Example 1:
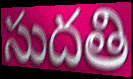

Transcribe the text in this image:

సుదతి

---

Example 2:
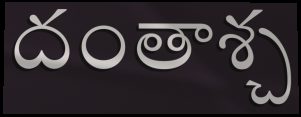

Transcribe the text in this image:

దంతాశ్చ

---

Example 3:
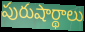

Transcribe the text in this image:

పురుషార్థాలు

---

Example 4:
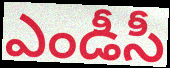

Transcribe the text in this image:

ఎండీసీ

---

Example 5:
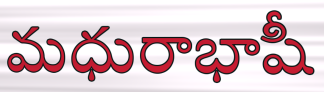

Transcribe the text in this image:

మధురాభాషీ